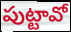
పుట్టావో